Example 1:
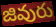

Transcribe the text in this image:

జివురు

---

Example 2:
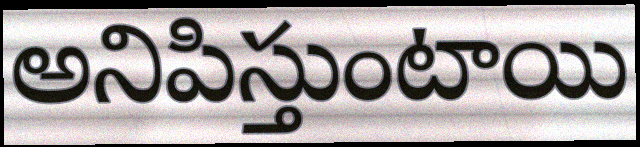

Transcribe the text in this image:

అనిపిస్తుంటాయి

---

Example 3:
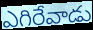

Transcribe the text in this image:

ఎగిరేవాడు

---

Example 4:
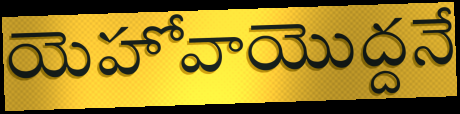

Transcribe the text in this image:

యెహోవాయొద్దనే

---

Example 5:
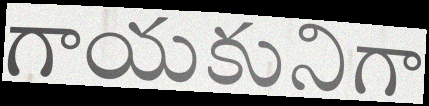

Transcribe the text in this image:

గాయకునిగా